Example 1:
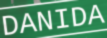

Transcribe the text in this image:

DANIDA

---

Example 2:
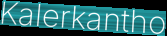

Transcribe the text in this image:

Kalerkantho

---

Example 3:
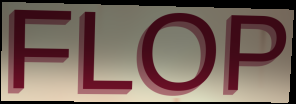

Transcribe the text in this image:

FLOP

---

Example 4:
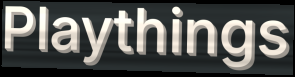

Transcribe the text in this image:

Playthings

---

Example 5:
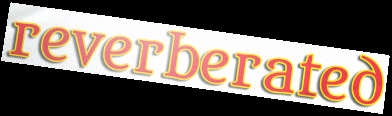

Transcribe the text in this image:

reverberated